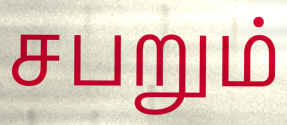
சபறும்